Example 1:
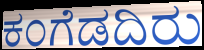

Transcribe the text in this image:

ಕಂಗೆಡದಿರು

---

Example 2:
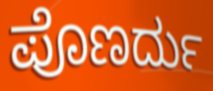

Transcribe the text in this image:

ಪೊಣರ್ದು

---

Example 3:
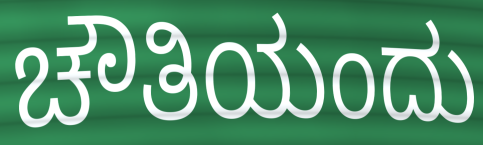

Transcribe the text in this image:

ಚೌತಿಯಂದು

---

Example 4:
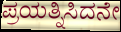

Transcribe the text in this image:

ಪ್ರಯತ್ನಿಸಿದನೇ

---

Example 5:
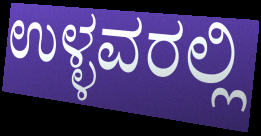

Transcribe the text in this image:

ಉಳ್ಳವರಲ್ಲಿ